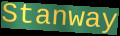
Stanway